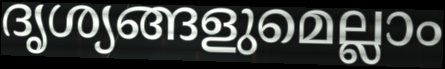
ദൃശ്യങ്ങളുമെല്ലാം